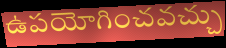
ఉపయోగించవచ్చు